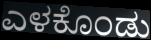
ಎಳಕೊಂಡು